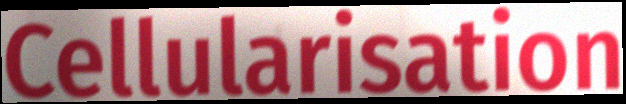
Cellularisation